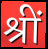
श्रीं